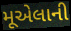
મૂએલાની